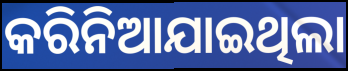
କରିନିଆଯାଇଥିଲା